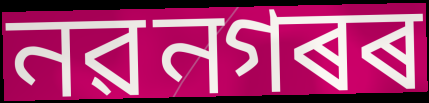
নৱনগৰৰ